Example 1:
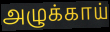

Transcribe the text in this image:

அழுக்காய்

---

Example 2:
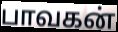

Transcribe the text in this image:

பாவகன்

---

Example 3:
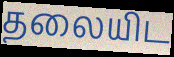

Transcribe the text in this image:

தலையிட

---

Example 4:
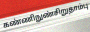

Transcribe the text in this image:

கண்ணிநுண்சிறுதாம்பு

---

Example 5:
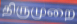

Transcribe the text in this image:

திருமுறை